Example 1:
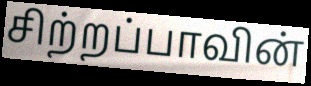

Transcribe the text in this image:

சிற்றப்பாவின்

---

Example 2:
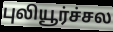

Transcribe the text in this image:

புலியூர்ச்சல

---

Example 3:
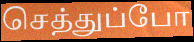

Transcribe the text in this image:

செத்துப்போ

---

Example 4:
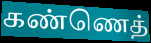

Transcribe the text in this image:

கண்ணெத்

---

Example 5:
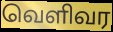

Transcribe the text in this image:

வெளிவர